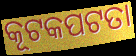
କୂଟକପଟତା